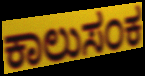
ಕಾಲುಸಂಕ